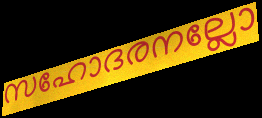
സഹോദരനല്ലോ